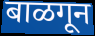
बाळगून